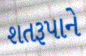
શતરૂપાને